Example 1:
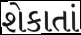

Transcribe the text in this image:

શેકાતાં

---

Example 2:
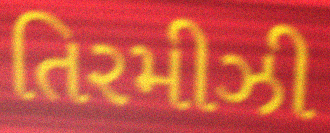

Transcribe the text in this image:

તિરમીઝી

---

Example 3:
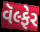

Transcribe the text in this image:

વૅલ્ફેર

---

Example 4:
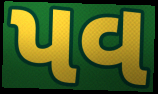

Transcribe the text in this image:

પવ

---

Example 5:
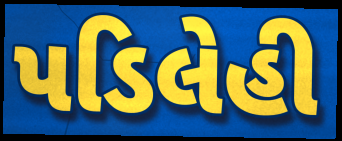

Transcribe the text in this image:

પડિલેહી